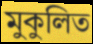
মুকুলিত